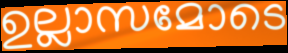
ഉല്ലാസമോടെ